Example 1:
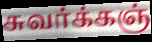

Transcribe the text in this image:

சுவர்க்கஞ்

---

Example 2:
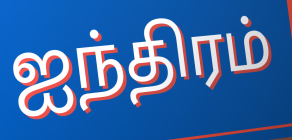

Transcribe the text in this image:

ஐந்திரம்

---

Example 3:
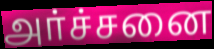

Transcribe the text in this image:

அர்ச்சனை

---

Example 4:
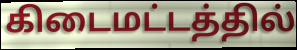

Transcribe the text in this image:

கிடைமட்டத்தில்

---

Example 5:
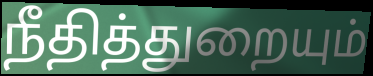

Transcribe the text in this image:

நீதித்துறையும்